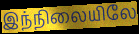
இந்நிலையிலே